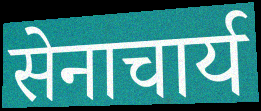
सेनाचार्य